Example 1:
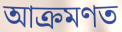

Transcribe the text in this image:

আক্ৰমণত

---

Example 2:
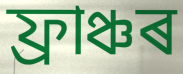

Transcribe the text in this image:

ফ্ৰাঞ্চৰ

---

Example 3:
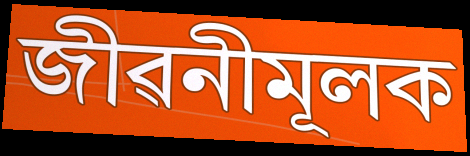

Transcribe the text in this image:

জীৱনীমূলক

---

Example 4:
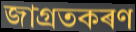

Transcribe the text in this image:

জাগ্ৰতকৰণ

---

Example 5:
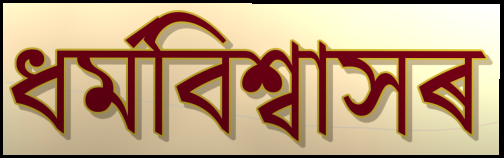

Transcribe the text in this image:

ধৰ্মবিশ্বাসৰ